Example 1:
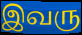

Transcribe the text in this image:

இவரு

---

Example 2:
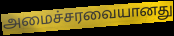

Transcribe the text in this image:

அமைச்சரவையானது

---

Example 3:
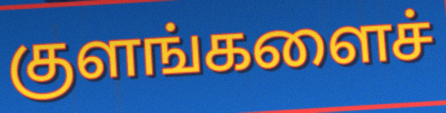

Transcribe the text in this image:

குளங்களைச்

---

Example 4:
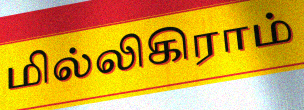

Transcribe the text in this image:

மில்லிகிராம்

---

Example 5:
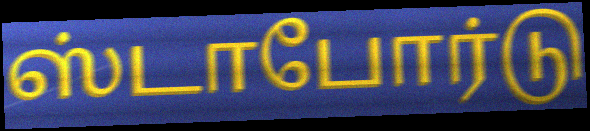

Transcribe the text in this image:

ஸ்டாபோர்டு